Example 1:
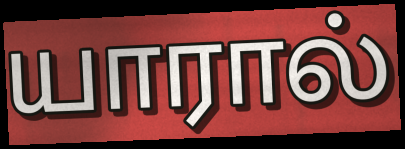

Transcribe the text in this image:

யாரால்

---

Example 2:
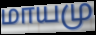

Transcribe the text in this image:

மாயமு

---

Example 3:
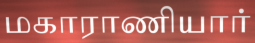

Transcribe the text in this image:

மகாராணியார்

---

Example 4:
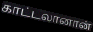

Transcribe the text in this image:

காட்டலானான்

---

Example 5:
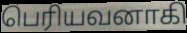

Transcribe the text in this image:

பெரியவனாகி